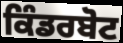
ਕਿੰਡਰਬੋਟ